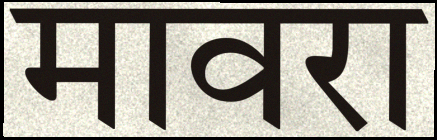
मावरा